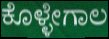
ಕೊಳ್ಳೇಗಾಲ